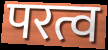
परत्व